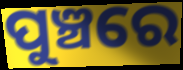
ପୁଞ୍ଚରେ